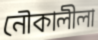
নৌকালীলা